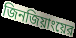
জিনজিয়াংয়ের